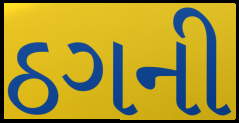
ઠગની